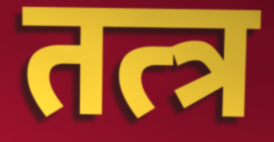
तत्त्र